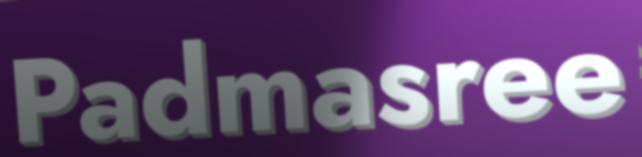
Padmasree